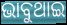
ଭାବୁଥାଇ